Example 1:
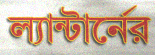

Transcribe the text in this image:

ল্যান্টার্নের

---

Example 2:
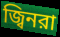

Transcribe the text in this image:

জ্বিনরা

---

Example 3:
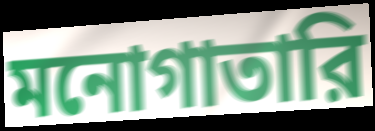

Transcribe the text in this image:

মনোগাতারি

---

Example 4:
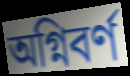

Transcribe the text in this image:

অগ্নিবর্ণ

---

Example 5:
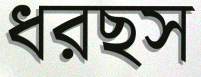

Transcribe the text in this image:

ধরছস